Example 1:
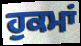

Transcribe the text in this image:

ਹੁਕਮਾਂ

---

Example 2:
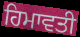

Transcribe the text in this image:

ਹਿਮਾਵਤੀ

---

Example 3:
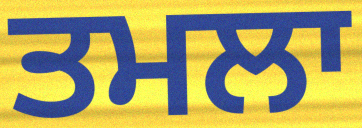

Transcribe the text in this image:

ਤਮਲਾ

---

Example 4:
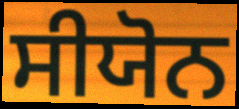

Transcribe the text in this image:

ਸੀਯੋਨ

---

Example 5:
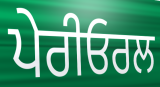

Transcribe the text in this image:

ਪੇਰੀਓਰਲ